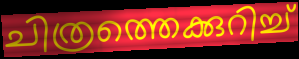
ചിത്രത്തെക്കുറിച്ച്